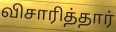
விசாரித்தார்